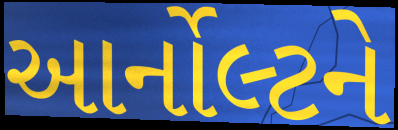
આર્નોલ્ટને